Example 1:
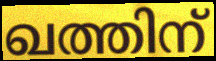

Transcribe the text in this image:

ഖത്തിന്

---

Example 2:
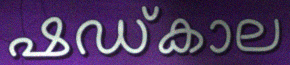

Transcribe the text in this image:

ഷഡ്കാല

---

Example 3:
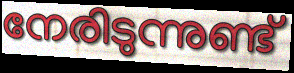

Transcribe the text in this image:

നേരിടുന്നുണ്ട്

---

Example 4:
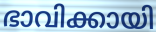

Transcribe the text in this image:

ഭാവിക്കായി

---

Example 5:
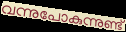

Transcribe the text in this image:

വന്നുപോകുന്നുണ്ട്